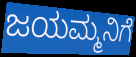
ಜಯಮ್ಮನಿಗೆ